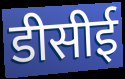
डीसीई